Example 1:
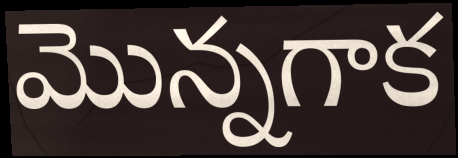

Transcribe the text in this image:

మొన్నగాక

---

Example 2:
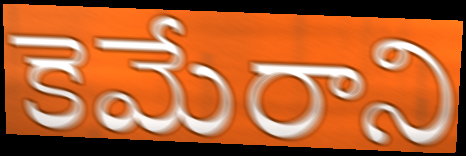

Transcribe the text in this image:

కెమేరాని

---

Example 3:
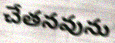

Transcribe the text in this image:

చేతనవును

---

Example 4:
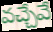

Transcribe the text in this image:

వచ్చేవే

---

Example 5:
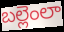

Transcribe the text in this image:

బల్లెంలా